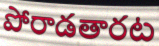
పోరాడతారట